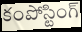
కంపోస్టింగ్